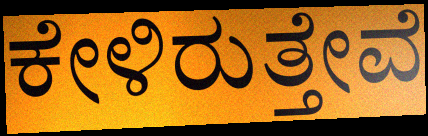
ಕೇಳಿರುತ್ತೇವೆ